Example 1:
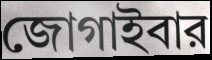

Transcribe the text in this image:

জোগাইবার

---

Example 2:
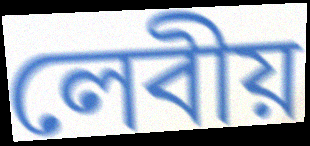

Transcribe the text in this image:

লেবীয়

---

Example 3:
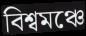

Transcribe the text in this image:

বিশ্বমঞ্চে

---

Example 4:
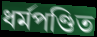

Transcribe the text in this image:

ধর্মপণ্ডিত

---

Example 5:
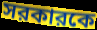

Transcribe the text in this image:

সরকারকে